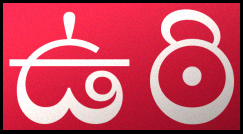
ఉఠి